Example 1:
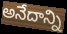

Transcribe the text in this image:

అనేదాన్ని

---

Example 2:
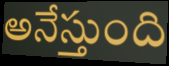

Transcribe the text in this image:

అనేస్తుంది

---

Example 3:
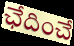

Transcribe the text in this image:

ఛేదించే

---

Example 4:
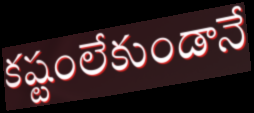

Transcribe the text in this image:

కష్టంలేకుండానే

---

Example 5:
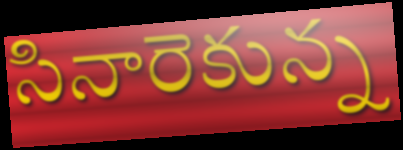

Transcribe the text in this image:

సినారెకున్న